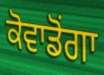
ਕੋਵਾਡੋਂਗਾ